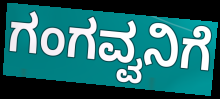
ಗಂಗವ್ವನಿಗೆ